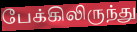
பேக்கிலிருந்து